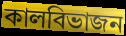
কালবিভাজন